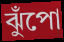
ঝুঁপো